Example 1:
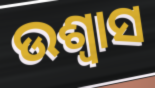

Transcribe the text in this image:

ଉଶ୍ୱାସ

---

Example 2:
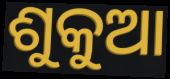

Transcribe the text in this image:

ଶୁକୁଆ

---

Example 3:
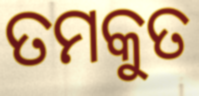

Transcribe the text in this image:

ତମକୁତ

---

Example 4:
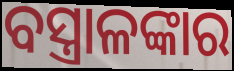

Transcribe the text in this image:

ବସ୍ତ୍ରାଳଙ୍କାର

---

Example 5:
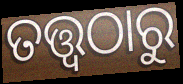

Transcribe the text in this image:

ତତ୍ତ୍ବଠାରୁ